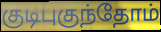
குடிபுகுந்தோம்